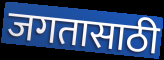
जगतासाठी